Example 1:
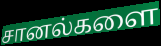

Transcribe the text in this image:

சானல்களை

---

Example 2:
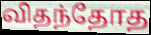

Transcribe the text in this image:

விதந்தோத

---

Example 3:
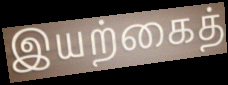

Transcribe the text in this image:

இயற்கைத்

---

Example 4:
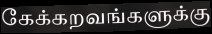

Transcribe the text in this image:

கேக்கறவங்களுக்கு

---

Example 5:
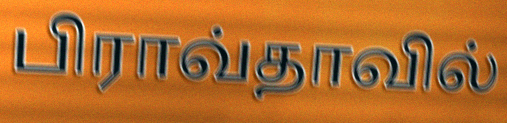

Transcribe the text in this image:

பிராவ்தாவில்